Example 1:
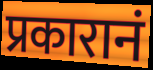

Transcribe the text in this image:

प्रकारानं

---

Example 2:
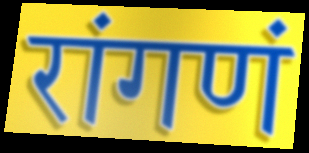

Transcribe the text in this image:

रांगणं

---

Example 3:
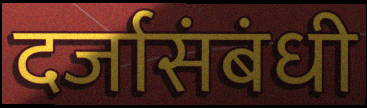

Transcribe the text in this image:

दर्जासंबंधी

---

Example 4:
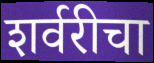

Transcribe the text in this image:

शर्वरीचा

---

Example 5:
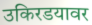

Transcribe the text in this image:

उकिरडयावर